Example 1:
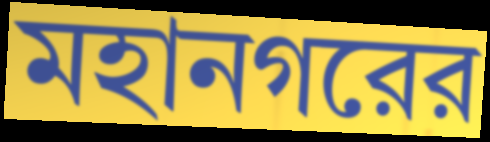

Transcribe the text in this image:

মহানগরের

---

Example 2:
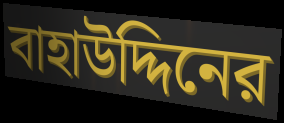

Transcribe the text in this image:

বাহাউদ্দিনের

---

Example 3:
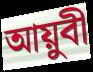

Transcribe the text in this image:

আয়ুবী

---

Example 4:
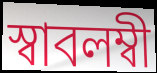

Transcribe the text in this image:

স্বাবলম্বী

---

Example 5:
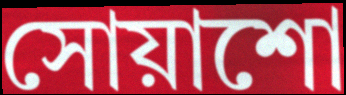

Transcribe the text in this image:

সোয়াশো